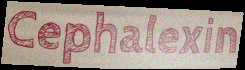
Cephalexin